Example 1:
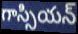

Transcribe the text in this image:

గాస్సియన్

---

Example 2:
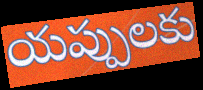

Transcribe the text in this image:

యప్పులకు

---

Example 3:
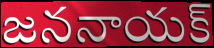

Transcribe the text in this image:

జననాయక్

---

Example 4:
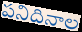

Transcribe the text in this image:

పనిదినాల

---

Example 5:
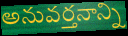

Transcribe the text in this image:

అనువర్తనాన్ని